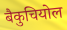
बैकुचियोल